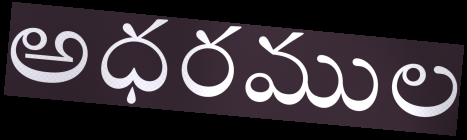
అధరముల